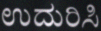
ಉದುರಿಸಿ